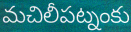
మచిలీపట్నంకు